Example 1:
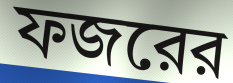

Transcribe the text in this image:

ফজরের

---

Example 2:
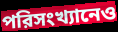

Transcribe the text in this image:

পরিসংখ্যানেও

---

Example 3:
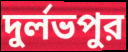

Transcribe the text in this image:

দুর্লভপুর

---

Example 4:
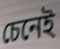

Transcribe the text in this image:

চেনেই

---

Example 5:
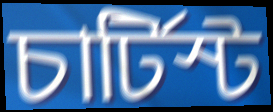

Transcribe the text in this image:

চার্টিস্ট